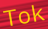
Tok